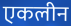
एकलीन